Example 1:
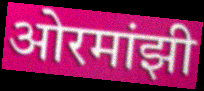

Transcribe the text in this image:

ओरमांझी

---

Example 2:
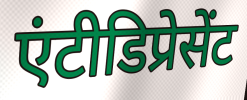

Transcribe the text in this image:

एंटीडिप्रेसेंट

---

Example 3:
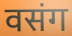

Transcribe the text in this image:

वसंग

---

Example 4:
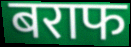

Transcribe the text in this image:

बराफ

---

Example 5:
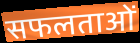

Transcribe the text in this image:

सफलताओं